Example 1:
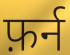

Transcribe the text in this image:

फ़र्न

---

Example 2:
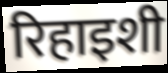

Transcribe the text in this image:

रिहाइशी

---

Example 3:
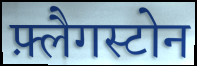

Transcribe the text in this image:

फ़्लैगस्टोन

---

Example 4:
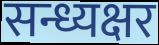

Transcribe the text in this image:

सन्ध्यक्षर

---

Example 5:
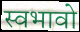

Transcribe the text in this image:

स्वभावो